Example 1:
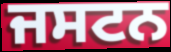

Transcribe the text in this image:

ਜਸਟਨ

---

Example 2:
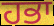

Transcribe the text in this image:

ਹਭਾ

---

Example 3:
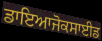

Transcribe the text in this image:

ਡਾਇਆਜੋਕਸਾਈਡ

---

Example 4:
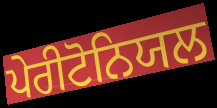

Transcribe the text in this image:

ਪੇਰੀਟੋਨਿਯਲ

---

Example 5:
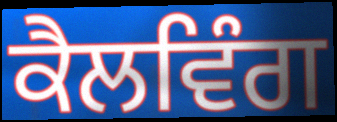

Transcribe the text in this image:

ਕੈਲਵਿੰਗ